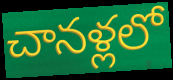
చానళ్లలో